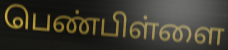
பெண்பிள்ளை